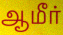
ஆமீர்